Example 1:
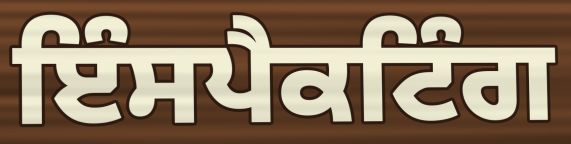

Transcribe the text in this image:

ਇੰਸਪੈਕਟਿੰਗ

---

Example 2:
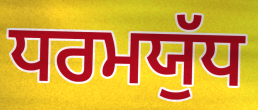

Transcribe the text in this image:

ਧਰਮਯੁੱਧ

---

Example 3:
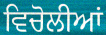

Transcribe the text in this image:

ਵਿਚੋਲੀਆਂ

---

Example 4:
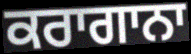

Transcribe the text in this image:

ਕਰਾਗਾਨਾ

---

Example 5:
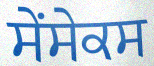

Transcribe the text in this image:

ਸੇਂਸੇਕਸ